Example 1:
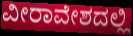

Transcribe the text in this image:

ವೀರಾವೇಶದಲ್ಲಿ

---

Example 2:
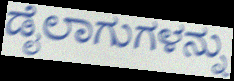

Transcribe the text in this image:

ಡೈಲಾಗುಗಳನ್ನು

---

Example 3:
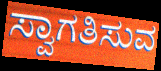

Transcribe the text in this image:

ಸ್ವಾಗತಿಸುವ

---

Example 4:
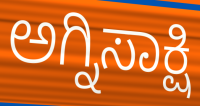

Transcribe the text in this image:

ಅಗ್ನಿಸಾಕ್ಷಿ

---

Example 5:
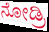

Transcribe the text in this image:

ನೋಡ್ರಿ